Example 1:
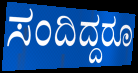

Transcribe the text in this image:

ಸಂದಿದ್ದರೂ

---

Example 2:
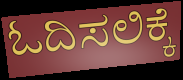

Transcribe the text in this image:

ಓದಿಸಲಿಕ್ಕೆ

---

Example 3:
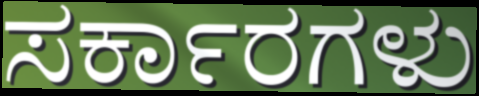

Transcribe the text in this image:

ಸರ್ಕಾರಗಳು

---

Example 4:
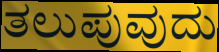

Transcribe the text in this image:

ತಲುಪುವುದು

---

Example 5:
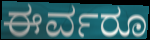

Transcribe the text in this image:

ಈರ್ವರೂ